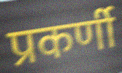
प्रकर्णी